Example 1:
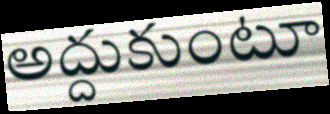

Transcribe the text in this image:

అద్దుకుంటూ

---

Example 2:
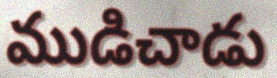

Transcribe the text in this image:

ముడిచాడు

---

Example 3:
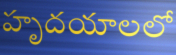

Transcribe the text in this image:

హృదయాలలో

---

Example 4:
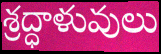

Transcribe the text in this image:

శ్రద్ధాళువులు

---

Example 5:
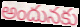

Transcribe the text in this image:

అందునకు